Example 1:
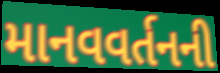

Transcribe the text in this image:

માનવવર્તનની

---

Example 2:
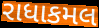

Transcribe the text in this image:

રાધાકમલ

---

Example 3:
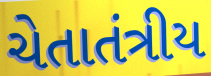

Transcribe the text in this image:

ચેતાતંત્રીય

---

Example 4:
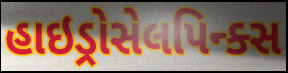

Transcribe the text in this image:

હાઇડ્રોસેલપિન્ક્સ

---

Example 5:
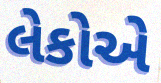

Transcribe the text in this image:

લેકોએ